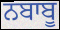
ਨਬਾਬੂ